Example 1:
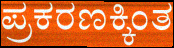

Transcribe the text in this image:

ಪ್ರಕರಣಕ್ಕಿಂತ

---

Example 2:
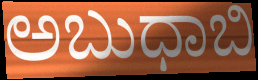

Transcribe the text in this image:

ಅಬುಧಾಬಿ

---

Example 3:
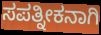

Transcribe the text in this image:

ಸಪತ್ನೀಕನಾಗಿ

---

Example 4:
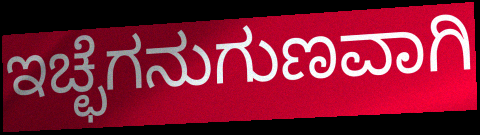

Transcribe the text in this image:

ಇಚ್ಛೆಗನುಗುಣವಾಗಿ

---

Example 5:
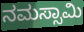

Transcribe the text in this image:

ನಮಸ್ಸಾಮಿ